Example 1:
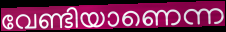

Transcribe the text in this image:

വേണ്ടിയാണെന്ന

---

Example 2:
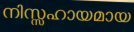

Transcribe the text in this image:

നിസ്സഹായമായ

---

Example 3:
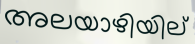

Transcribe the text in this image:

അലയാഴിയില്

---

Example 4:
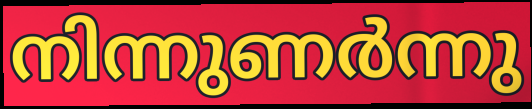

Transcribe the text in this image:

നിന്നുണർന്നു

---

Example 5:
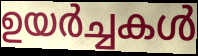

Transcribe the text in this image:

ഉയർച്ചകൾ